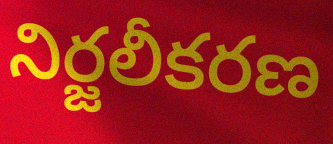
నిర్జలీకరణ